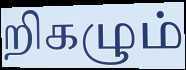
றிகழும்